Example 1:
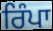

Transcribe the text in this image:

ਰਿੰਪਾ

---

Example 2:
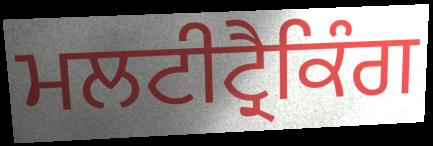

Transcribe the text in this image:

ਮਲਟੀਟ੍ਰੈਕਿੰਗ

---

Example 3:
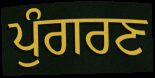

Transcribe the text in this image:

ਪੁੰਗਰਣ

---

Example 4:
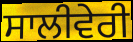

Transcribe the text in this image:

ਸਾਲੀਵੇਰੀ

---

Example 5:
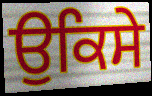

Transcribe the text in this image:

ਉਕਿਸੇ